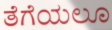
ತೆಗೆಯಲೂ